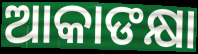
ଆକାଙକ୍ଷା